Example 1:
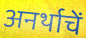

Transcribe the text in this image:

अनर्थाचें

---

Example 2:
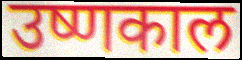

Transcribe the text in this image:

उष्णकाल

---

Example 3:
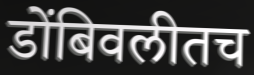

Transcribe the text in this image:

डोंबिवलीतच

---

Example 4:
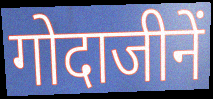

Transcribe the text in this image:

गोदाजीनें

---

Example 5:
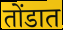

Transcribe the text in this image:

तोंडात